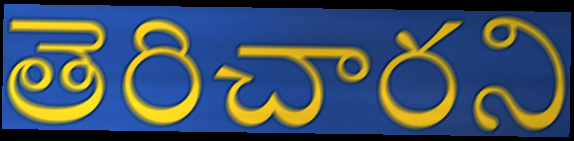
తెరిచారని